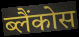
ब्लैंकोस